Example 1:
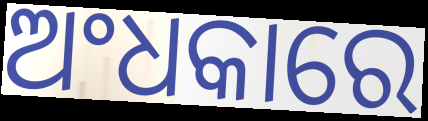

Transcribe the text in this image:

ଅଂଧକାରେ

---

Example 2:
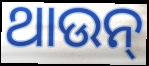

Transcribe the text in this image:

ଥାଉନ୍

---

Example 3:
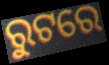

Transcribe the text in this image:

ରୁଟରେ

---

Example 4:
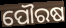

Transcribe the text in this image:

ପୌରଷ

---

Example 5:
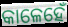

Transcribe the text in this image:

କାଳେହେଁ